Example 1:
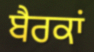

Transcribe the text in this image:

ਬੈਰਕਾਂ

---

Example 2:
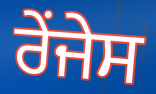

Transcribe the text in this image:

ਰੇਂਜੇਸ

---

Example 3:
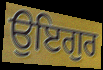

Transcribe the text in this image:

ਉਇਗੁਰ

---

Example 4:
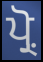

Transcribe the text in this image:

ਪ੍ਰ਼ੋ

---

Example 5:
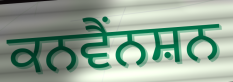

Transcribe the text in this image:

ਕਨਵੈਂਨਸ਼ਨ